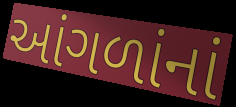
આંગળાંનાં